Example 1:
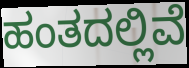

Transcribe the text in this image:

ಹಂತದಲ್ಲಿವೆ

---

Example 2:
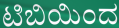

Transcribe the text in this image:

ಟಿಬಿಯಿಂದ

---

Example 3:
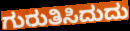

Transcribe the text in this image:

ಗುರುತಿಸಿದುದು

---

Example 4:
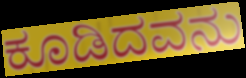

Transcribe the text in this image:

ಕೂಡಿದವನು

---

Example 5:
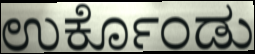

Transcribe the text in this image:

ಉರ್ಕೊಂಡು